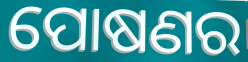
ପୋଷଣର